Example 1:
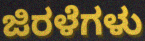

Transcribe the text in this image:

ಜಿರಳೆಗಳು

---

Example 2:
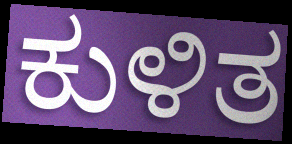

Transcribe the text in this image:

ಕುಳಿತ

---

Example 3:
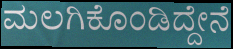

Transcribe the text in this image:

ಮಲಗಿಕೊಂಡಿದ್ದೇನೆ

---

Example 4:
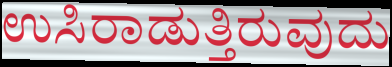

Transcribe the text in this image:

ಉಸಿರಾಡುತ್ತಿರುವುದು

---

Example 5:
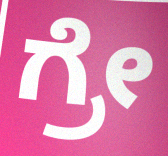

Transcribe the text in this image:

ಗ್ರೇ